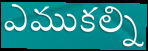
ఎముకల్ని